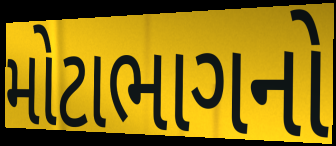
મોટાભાગનો